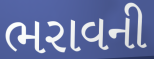
ભરાવની